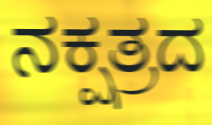
ನಕ್ಷತ್ರದ